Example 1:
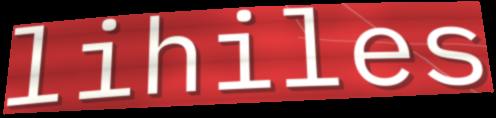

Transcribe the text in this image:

lihiles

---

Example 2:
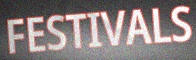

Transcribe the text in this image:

FESTIVALS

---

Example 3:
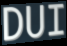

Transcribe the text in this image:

DUI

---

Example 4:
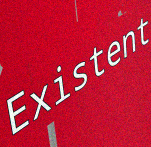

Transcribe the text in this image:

Existent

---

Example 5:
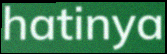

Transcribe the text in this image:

hatinya